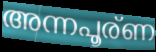
അന്നപൂര്ണ